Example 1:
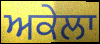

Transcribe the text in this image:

ਅਕੇਲਾ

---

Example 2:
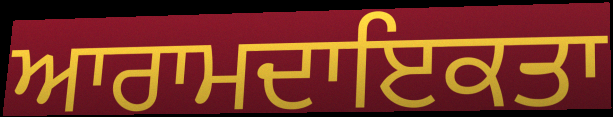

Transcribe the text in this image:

ਆਰਾਮਦਾਇਕਤਾ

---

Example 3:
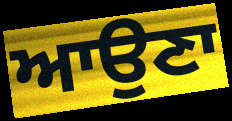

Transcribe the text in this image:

ਆਉਣਾ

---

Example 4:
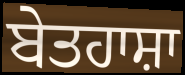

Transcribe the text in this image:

ਬੇਤਹਾਸ਼ਾ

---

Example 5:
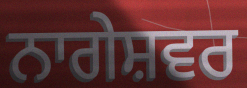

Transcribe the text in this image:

ਨਾਗੇਸ਼ਵਰ